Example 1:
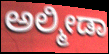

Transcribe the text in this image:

ಅಲ್ಮೀಡಾ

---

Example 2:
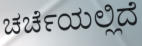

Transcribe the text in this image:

ಚರ್ಚೆಯಲ್ಲಿದೆ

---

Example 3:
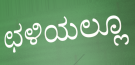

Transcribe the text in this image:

ಛಳಿಯಲ್ಲೂ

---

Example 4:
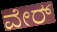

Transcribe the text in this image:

ವೇರ್‍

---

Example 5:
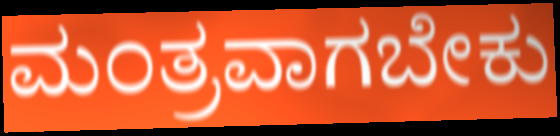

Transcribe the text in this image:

ಮಂತ್ರವಾಗಬೇಕು